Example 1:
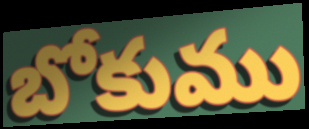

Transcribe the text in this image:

బోకుము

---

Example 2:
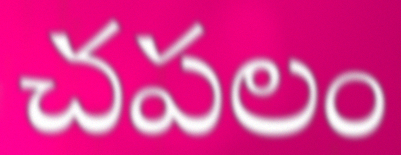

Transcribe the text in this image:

చపలం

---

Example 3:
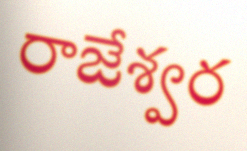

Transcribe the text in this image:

రాజేశ్వర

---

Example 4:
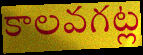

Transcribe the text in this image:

కాలవగట్ల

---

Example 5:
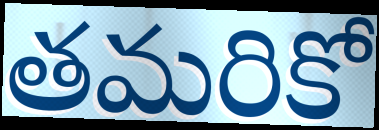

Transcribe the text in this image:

తమరికో